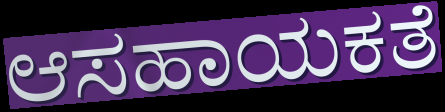
ಆಸಹಾಯಕತೆ